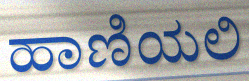
ಹಾಣಿಯಲಿ